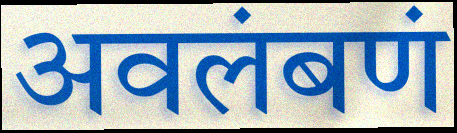
अवलंबणं